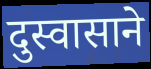
दुस्वासाने